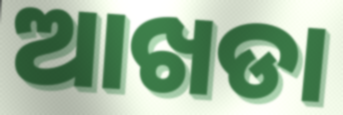
ଆଖଡା